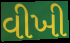
વીખી